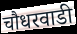
चौधरवाडी